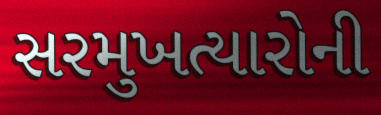
સરમુખત્યારોની